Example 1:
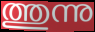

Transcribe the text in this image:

ത്തുന്നു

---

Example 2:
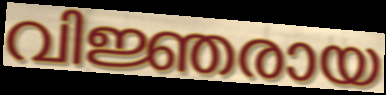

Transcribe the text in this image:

വിജ്ഞരായ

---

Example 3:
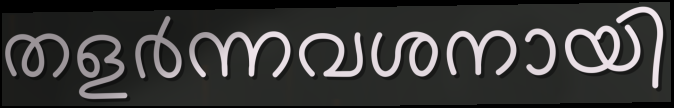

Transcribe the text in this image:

തളർന്നവശനായി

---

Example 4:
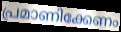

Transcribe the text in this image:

പ്രമാണിക്കേണം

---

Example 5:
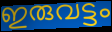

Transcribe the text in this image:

ഇരുവട്ടം